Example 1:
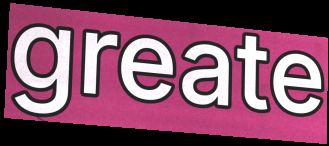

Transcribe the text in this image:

greate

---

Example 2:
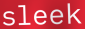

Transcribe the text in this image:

sleek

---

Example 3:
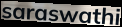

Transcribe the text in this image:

saraswathi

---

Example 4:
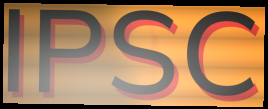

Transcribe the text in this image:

IPSC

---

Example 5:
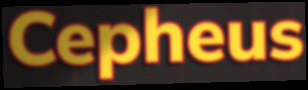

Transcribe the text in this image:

Cepheus